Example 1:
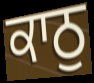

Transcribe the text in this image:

ਕਾਠੁ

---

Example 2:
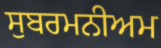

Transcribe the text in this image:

ਸੁਬਰਮਨੀਅਮ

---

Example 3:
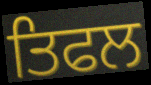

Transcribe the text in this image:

ਤਿਫਲ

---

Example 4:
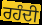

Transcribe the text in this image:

ਰਹੰਦੀ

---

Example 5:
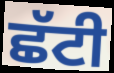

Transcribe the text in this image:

ਛੱਟੀ